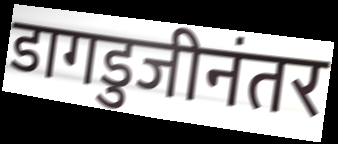
डागडुजीनंतर